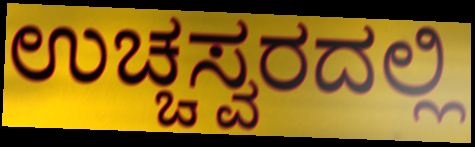
ಉಚ್ಚಸ್ವರದಲ್ಲಿ